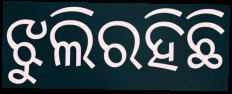
ଝୁଲିରହିଛି